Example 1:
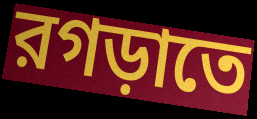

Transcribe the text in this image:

রগড়াতে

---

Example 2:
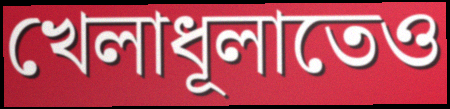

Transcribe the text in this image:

খেলাধূলাতেও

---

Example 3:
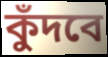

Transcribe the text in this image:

কুঁদবে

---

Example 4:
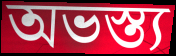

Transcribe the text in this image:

অভস্ত্য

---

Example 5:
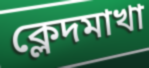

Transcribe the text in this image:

ক্লেদমাখা